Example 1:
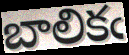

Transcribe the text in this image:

బాలికఁ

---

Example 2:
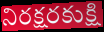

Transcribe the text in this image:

నిరక్షరకుక్షి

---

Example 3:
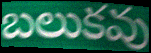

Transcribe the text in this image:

బలుకవు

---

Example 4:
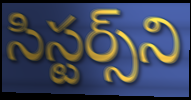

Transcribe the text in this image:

సిస్టర్స్‌ని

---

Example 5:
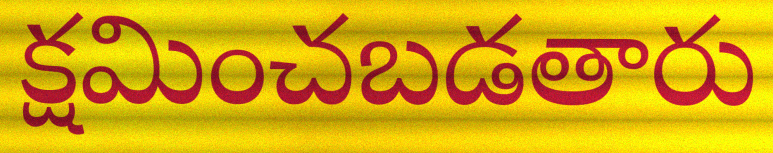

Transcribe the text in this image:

క్షమించబడతారు